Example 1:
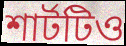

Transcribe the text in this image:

শার্টটিও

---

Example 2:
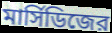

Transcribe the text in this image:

মার্সিডিজের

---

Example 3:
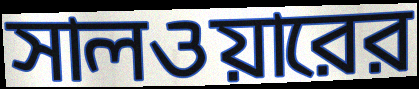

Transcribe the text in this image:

সালওয়ারের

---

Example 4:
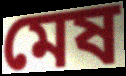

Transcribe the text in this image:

মেষ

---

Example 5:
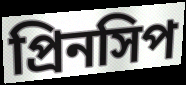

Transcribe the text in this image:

প্রিনসিপ